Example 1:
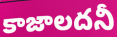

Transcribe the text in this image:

కాజాలదనీ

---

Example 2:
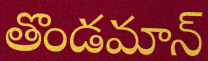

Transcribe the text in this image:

తొండమాన్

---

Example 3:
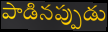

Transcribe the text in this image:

పాడినప్పుడు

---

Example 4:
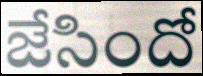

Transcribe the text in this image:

జేసిందో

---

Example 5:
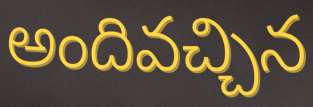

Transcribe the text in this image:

అందివచ్చిన